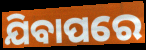
ଯିବାପରେ